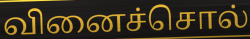
வினைச்சொல்